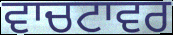
ਵਾਚਟਾਵਰ